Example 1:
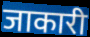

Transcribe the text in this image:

जाकारी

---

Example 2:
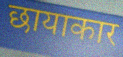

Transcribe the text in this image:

छायाकार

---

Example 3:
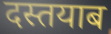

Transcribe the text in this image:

दस्तयाब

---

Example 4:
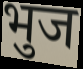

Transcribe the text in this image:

भुज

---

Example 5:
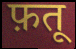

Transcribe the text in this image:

फ़तू